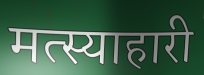
मत्स्याहारी